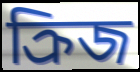
ক্রিজ